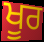
ਖੂਰ